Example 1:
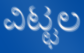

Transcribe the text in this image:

ವಿಟ್ಟಲ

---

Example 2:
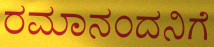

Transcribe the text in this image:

ರಮಾನಂದನಿಗೆ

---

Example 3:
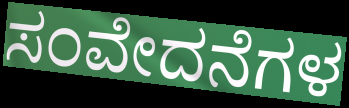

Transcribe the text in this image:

ಸಂವೇದನೆಗಳ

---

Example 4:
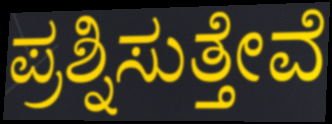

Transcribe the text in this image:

ಪ್ರಶ್ನಿಸುತ್ತೇವೆ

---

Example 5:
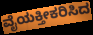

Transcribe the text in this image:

ವೈಯಕ್ತೀಕರಿಸಿದ